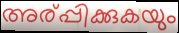
അര്പ്പിക്കുകയും